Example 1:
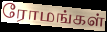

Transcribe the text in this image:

ரோமங்கள்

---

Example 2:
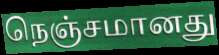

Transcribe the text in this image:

நெஞ்சமானது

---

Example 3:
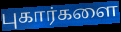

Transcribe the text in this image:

புகார்களை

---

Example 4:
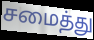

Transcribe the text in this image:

சமைத்து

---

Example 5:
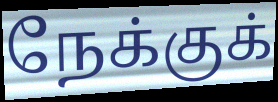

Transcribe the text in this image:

நேக்குக்